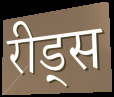
रीड्स